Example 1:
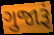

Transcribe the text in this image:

ગુજારૂં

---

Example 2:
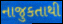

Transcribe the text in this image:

નાજુકતાથી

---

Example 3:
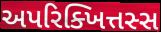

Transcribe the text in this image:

અપરિક્ખિત્તસ્સ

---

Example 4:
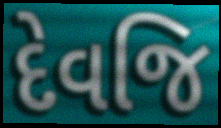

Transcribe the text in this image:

દેવજિ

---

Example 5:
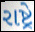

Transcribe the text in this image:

રાષ્ટ્રે